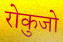
रोकुजो